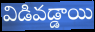
విడివడ్డాయి